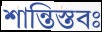
শান্তিস্তবঃ